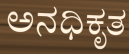
ಅನಧಿಕೃತ